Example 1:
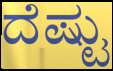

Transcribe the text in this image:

ದೆಷ್ಟು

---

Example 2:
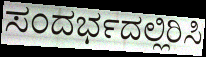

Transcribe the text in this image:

ಸಂದರ್ಭದಲ್ಲಿರಿಸಿ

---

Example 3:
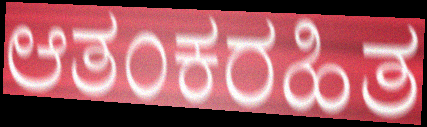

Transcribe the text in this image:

ಆತಂಕರಹಿತ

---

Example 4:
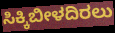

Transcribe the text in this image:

ಸಿಕ್ಕಿಬೀಳದಿರಲು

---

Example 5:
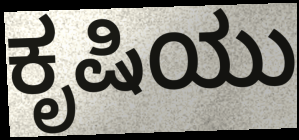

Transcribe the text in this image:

ಕೃಷಿಯು